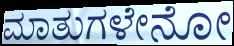
ಮಾತುಗಳೇನೋ